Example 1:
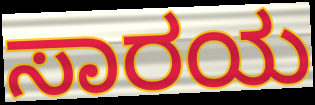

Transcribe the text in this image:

ಸಾರಯ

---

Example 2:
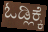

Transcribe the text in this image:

ಓಡ್ಲಿಕ್ಕೆ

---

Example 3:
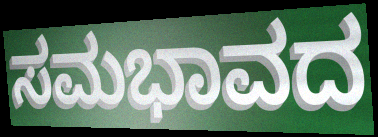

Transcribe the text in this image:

ಸಮಭಾವದ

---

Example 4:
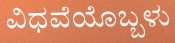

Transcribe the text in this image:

ವಿಧವೆಯೊಬ್ಬಳು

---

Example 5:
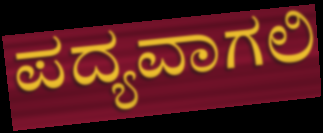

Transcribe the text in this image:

ಪದ್ಯವಾಗಲಿ